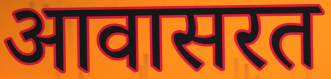
आवासरत